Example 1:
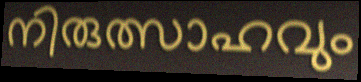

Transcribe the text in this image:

നിരുത്സാഹവും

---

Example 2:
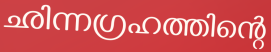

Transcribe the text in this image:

ഛിന്നഗ്രഹത്തിന്റെ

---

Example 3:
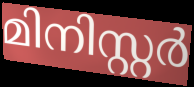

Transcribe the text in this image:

മിനിസ്റ്റർ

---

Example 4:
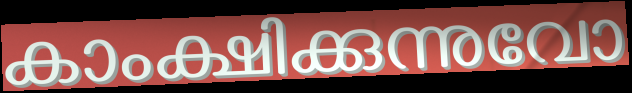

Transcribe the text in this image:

കാംക്ഷിക്കുന്നുവോ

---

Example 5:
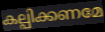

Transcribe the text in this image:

കല്പിക്കണമേ